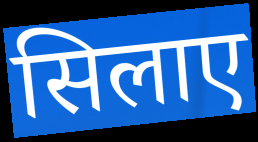
सिलाए